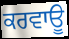
ਕਰਵਾਊ